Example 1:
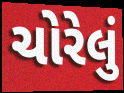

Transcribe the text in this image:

ચોરેલું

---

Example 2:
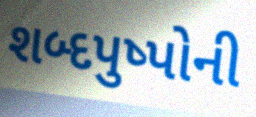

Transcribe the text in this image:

શબ્દપુષ્પોની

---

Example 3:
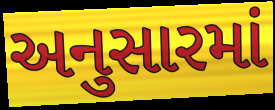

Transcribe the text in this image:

અનુસારમાં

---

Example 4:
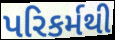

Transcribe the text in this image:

પરિકર્મથી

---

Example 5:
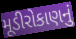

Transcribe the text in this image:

મૂડીરોકાણનું